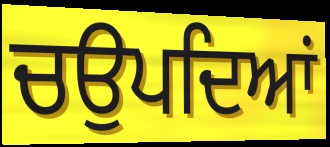
ਚਉਪਦਿਆਂ